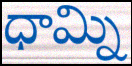
ధామ్ని